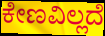
ಕೇಣವಿಲ್ಲದೆ